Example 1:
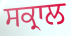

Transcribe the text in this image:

ਸਕ੍ਰਾਲ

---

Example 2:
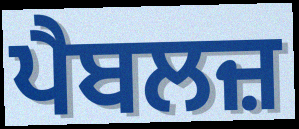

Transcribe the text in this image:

ਪੈਬਲਜ਼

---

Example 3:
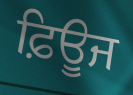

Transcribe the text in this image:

ਫ਼ਿਊਜ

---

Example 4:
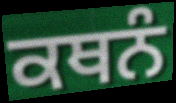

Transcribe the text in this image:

ਕਥਨੰ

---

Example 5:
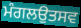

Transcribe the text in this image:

ਮੰਗਲਉਤਸਵ